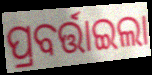
ପ୍ରବର୍ତ୍ତାଇଲା